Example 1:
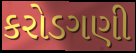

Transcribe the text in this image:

કરોડગણી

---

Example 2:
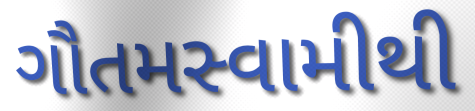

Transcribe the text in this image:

ગૌતમસ્વામીથી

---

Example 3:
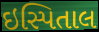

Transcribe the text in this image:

ઇસ્પિતાલ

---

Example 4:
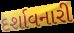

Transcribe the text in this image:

દર્શાવનારી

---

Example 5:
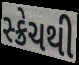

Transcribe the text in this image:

સ્ક્રેચથી